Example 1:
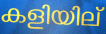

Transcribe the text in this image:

കളിയില്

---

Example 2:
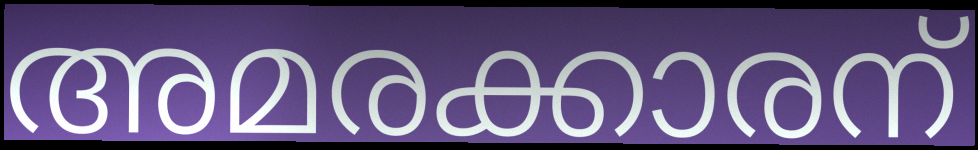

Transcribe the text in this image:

അമരക്കാരന്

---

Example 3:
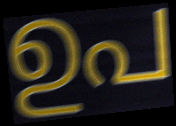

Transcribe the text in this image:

ഉപ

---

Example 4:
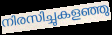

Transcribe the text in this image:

നിരസിച്ചുകളഞ്ഞു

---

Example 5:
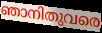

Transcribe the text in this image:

ഞാനിതുവരെ